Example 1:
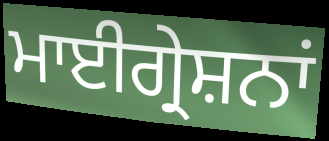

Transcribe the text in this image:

ਮਾਈਗ੍ਰੇਸ਼ਨਾਂ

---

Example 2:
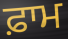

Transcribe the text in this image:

ਫ਼ਾਮ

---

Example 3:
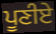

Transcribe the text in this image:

ਪੂਣੀਏ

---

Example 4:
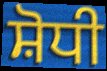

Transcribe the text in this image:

ਸ਼ੋਧੀ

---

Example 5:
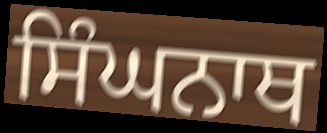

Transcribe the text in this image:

ਸਿੰਘਨਾਥ